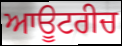
ਆਊਟਰੀਚ